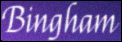
Bingham